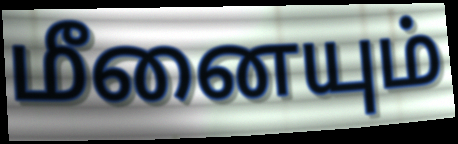
மீனையும்